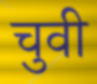
चुवी